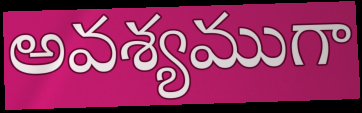
అవశ్యముగా